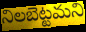
నిలబెట్టమని